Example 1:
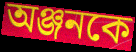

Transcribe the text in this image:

অঞ্জনকে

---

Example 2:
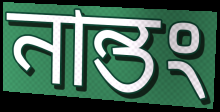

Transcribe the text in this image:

নান্তং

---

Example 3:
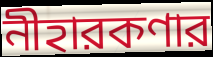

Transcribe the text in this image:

নীহারকণার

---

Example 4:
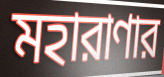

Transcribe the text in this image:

মহারাণার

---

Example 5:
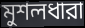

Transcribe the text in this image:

মুশলধারা